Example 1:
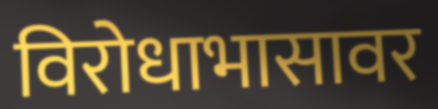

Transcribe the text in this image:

विरोधाभासावर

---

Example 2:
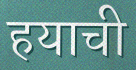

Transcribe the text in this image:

हयाची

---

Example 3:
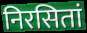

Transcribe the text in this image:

निरसितां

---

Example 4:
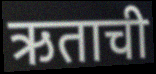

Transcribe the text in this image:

ऋताची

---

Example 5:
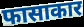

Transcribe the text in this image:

फासाकार